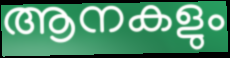
ആനകളും